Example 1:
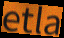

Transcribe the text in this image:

etla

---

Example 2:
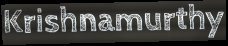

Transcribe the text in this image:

Krishnamurthy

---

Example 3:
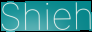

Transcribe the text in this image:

Shieh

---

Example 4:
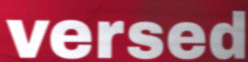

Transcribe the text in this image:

versed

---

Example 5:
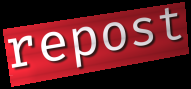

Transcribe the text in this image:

repost